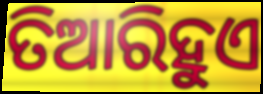
ତିଆରିହୁଏ